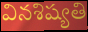
వినశిష్యతి